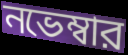
নভেম্বার